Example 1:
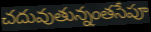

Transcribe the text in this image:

చదువుతున్నంతసేపూ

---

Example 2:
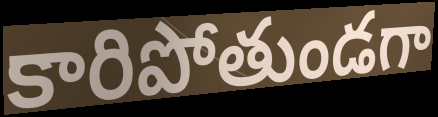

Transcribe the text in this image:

కారిపోతుండగా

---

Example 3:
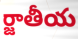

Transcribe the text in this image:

ర్జాతీయ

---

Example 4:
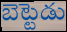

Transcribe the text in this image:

బెట్టెడు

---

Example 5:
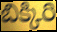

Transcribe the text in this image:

బిక్కిరి